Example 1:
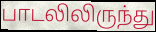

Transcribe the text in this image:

பாடலிலிருந்து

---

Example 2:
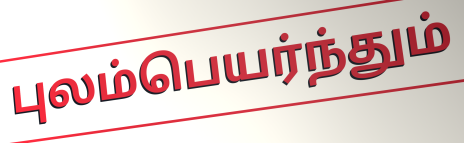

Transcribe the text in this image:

புலம்பெயர்ந்தும்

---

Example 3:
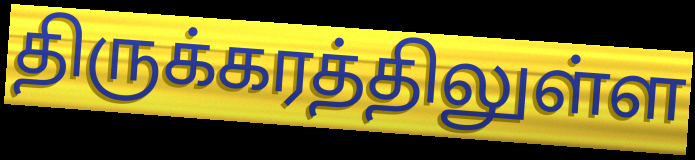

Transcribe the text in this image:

திருக்கரத்திலுள்ள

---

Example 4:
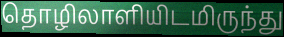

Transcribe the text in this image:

தொழிலாளியிடமிருந்து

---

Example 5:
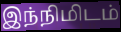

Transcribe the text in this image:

இந்நிமிடம்